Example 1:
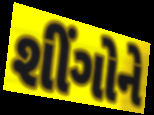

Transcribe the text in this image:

શીંગોને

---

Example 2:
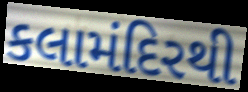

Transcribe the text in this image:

કલામંદિરથી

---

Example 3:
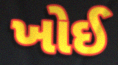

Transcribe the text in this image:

ખોઈ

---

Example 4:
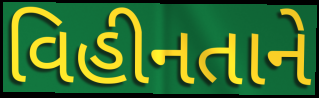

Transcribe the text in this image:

વિહીનતાને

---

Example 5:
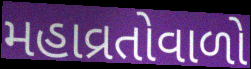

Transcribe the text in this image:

મહાવ્રતોવાળો